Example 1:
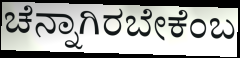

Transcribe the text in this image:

ಚೆನ್ನಾಗಿರಬೇಕೆಂಬ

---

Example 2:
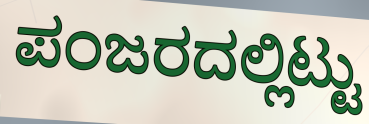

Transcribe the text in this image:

ಪಂಜರದಲ್ಲಿಟ್ಟು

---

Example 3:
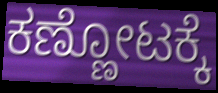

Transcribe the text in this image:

ಕಣ್ಣೋಟಕ್ಕೆ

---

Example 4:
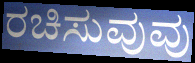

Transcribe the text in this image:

ರಚಿಸುವುವು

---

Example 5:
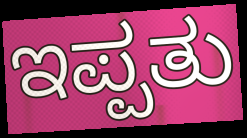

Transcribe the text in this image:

ಇಪ್ಪತು